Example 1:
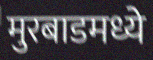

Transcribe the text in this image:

मुरबाडमध्ये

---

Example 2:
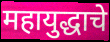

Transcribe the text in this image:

महायुद्धाचे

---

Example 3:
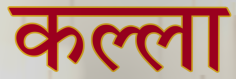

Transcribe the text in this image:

कल्ला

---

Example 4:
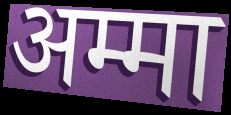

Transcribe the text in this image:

अम्मा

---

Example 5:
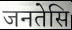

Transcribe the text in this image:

जनतेसि